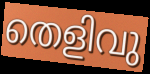
തെളിവു